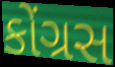
કોંગ્રસ